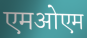
एमओएम